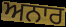
ਅਨਾਰ